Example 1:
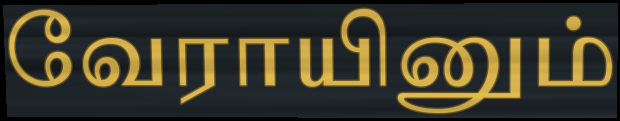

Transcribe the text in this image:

வேராயினும்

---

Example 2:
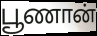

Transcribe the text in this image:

பூணான்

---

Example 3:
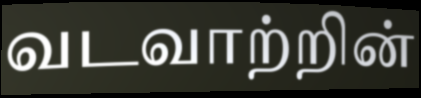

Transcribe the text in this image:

வடவாற்றின்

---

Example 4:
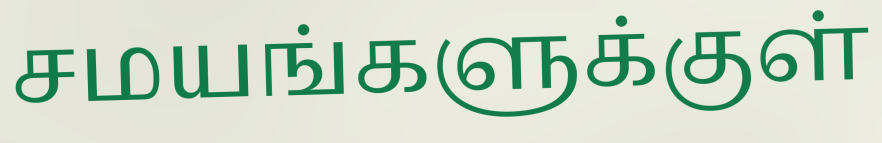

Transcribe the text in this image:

சமயங்களுக்குள்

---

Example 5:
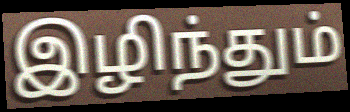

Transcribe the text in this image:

இழிந்தும்